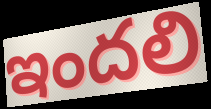
ఇందలి